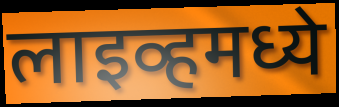
लाइव्हमध्ये